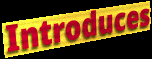
Introduces